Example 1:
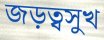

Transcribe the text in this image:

জড়ত্বসুখ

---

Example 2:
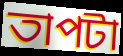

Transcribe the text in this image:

তাপটা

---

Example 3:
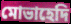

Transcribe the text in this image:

মোভাহেদি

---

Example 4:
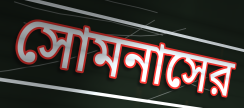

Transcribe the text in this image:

সোমনাসের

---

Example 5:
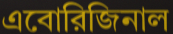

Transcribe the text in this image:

এবোরিজিনাল